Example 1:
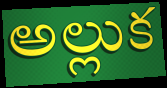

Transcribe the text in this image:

అల్లుక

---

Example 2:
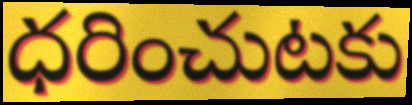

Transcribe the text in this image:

ధరించుటకు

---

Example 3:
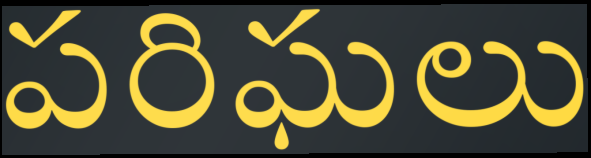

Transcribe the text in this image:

పరిఘలు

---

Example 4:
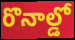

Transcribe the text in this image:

రొనాల్డో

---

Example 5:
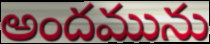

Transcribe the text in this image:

అందమును